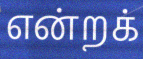
என்றக்